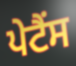
ਪੇਟੈਂਸ